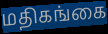
மதிகங்கை